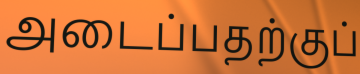
அடைப்பதற்குப்